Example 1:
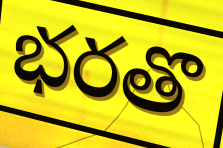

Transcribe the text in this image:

భరతొ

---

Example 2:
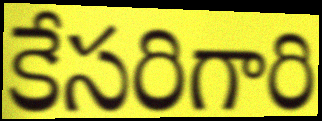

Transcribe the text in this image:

కేసరిగారి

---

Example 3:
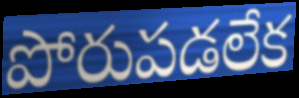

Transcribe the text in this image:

పోరుపడలేక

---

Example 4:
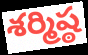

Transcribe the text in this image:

శర్మిష్ఠ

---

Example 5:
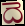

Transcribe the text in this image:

దె